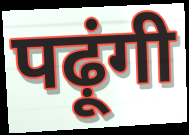
पढ़ूंगी